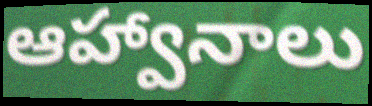
ఆహ్వానాలు